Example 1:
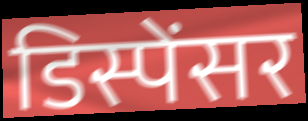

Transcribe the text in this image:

डिस्पेंसर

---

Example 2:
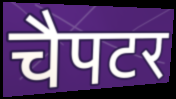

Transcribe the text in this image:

चैपटर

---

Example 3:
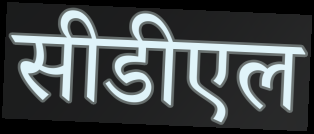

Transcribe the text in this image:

सीडीएल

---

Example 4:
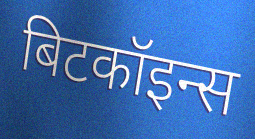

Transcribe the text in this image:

बिटकॉइन्स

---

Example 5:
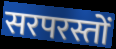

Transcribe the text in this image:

सरपरस्तों